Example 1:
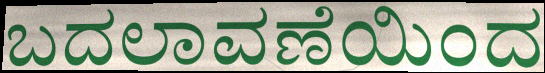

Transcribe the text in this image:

ಬದಲಾವಣೆಯಿಂದ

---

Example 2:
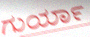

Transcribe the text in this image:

ಗುರ್ಯಾ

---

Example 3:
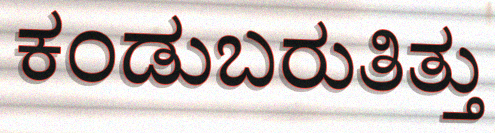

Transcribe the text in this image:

ಕಂಡುಬರುತಿತ್ತು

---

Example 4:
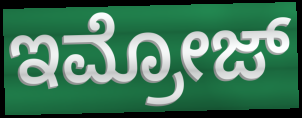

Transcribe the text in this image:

ಇಮ್ರೋಜ್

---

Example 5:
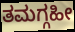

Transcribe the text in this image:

ತಮಗ್ಗಹೀ